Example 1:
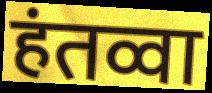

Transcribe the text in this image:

हंतव्वा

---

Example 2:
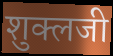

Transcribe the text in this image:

शुक्‍लजी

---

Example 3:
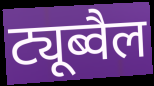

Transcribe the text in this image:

ट्यूब्वैल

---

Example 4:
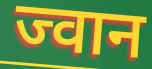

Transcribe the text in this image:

ज्वान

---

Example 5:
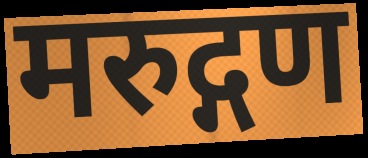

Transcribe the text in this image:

मरुद्गण